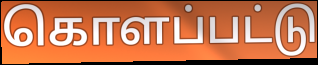
கொளப்பட்டு